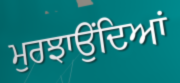
ਮੁਰਝਾਉਂਦਿਆਂ